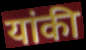
यांकी